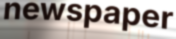
newspaper